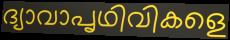
ദ്യാവാപൃഥിവികളെ